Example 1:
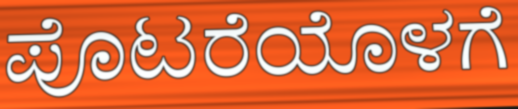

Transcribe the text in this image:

ಪೊಟರೆಯೊಳಗೆ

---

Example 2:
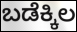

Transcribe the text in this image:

ಬಡೆಕ್ಕಿಲ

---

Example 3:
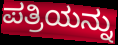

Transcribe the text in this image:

ಪತ್ರಿಯನ್ನು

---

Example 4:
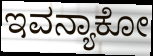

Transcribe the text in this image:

ಇವನ್ಯಾಕೋ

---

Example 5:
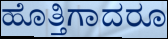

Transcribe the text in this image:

ಹೊತ್ತಿಗಾದರೂ